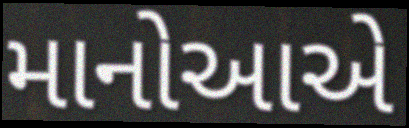
માનોઆએ